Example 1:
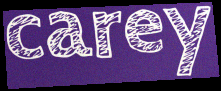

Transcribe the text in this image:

carey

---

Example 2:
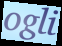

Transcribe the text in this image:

ogli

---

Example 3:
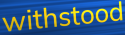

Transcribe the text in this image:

withstood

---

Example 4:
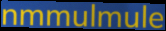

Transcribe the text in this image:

nmmulmule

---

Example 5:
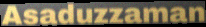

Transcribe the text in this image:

Asaduzzaman